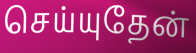
செய்யுதேன்